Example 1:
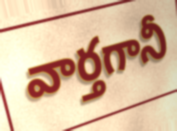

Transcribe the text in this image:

వార్తగానీ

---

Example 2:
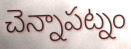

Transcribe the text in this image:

చెన్నాపట్నం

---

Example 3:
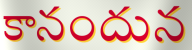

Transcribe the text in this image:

కానందున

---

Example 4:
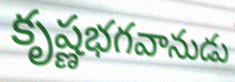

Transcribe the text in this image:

కృష్ణభగవానుడు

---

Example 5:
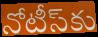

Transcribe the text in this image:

నోటీస్‌కు